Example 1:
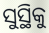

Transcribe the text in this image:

ସୁସ୍ଥିକୁ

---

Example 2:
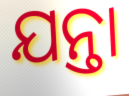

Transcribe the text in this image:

ଯନ୍ତା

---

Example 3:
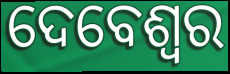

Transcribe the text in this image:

ଦେବେଶ୍ୱର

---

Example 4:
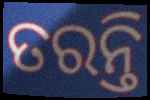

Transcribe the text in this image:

ତରନ୍ତି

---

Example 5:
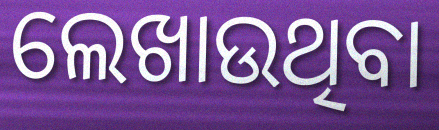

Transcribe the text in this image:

ଲେଖାଉଥିବା